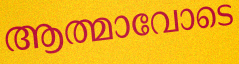
ആത്മാവോടെ